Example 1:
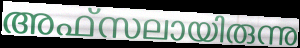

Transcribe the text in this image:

അഫ്സലായിരുന്നു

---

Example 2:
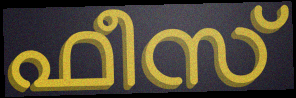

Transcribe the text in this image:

ഫീസ്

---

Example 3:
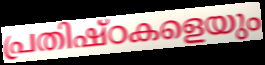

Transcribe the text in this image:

പ്രതിഷ്ഠകളെയും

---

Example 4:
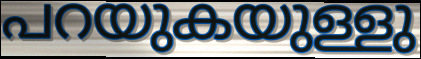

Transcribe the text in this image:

പറയുകയുള്ളു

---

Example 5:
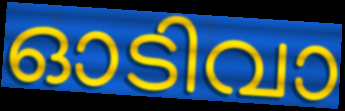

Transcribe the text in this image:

ഓടിവാ